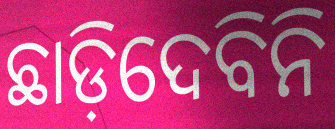
ଛାଡ଼ିଦେବିନି